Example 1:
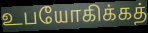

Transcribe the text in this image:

உபயோகிக்கத்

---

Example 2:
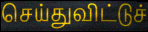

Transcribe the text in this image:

செய்துவிட்டுச்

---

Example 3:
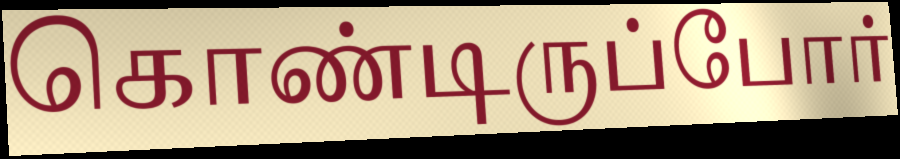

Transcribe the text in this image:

கொண்டிருப்போர்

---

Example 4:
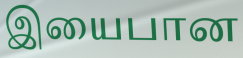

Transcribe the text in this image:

இயைபான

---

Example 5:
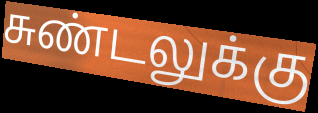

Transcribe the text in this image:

சுண்டலுக்கு